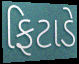
ફિટાડે